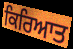
ਕਿਰਿਆਤ